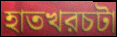
হাতখরচটা